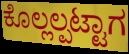
ಕೊಲ್ಲಲ್ಪಟ್ಟಾಗ